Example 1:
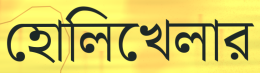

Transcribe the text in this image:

হোলিখেলার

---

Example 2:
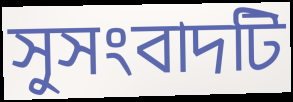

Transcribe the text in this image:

সুসংবাদটি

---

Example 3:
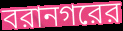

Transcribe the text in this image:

বরানগরের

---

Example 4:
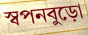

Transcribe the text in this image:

স্বপনবুড়ো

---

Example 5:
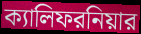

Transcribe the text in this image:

ক্যালিফরনিয়ার